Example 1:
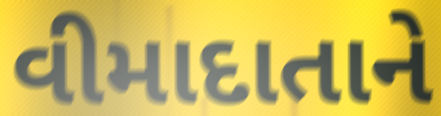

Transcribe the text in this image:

વીમાદાતાને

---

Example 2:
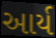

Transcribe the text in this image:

આર્ય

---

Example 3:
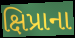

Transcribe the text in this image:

ક્ષિપ્રાના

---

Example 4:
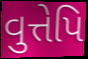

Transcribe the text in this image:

વુત્તેપિ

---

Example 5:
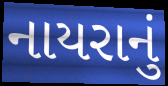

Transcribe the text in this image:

નાયરાનું